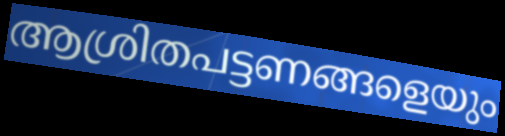
ആശ്രിതപട്ടണങ്ങളെയും